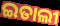
ଇତାଲୀ